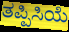
ತಪ್ಪಿಸಿಯೆ